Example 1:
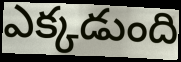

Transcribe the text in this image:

ఎక్కడుంది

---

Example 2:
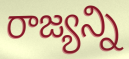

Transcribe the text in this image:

రాజ్యన్ని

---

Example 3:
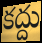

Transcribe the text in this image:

కద్దు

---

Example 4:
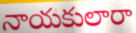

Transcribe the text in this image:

నాయకులారా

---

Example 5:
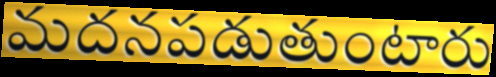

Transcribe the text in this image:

మదనపడుతుంటారు